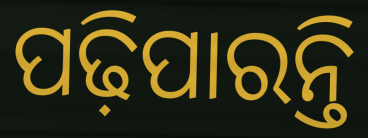
ପଢ଼ିପାରନ୍ତି